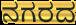
ನಗರದ